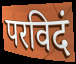
परविदं